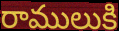
రాములుకి